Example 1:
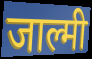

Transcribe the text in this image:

जाल्मी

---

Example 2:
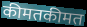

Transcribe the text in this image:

कीमतकीमत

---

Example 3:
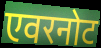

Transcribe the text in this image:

एवरनोट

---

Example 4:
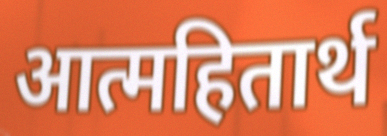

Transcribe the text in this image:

आत्महितार्थ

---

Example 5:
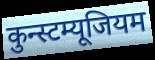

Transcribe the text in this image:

कुन्स्टम्यूजियम